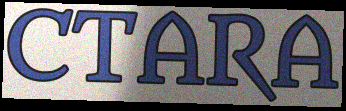
CTARA